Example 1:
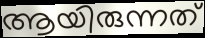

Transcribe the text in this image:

ആയിരുന്നത്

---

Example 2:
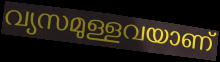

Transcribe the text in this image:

വ്യസമുള്ളവയാണ്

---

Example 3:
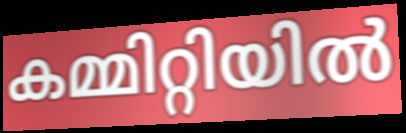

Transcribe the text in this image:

കമ്മിറ്റിയിൽ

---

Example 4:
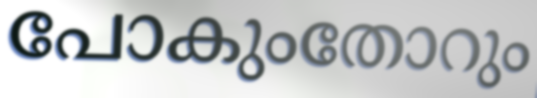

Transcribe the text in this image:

പോകുംതോറും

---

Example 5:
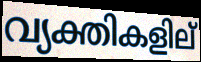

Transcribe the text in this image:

വ്യക്തികളില്